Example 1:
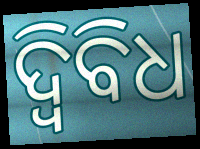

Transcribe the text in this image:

ଦ୍ଵିବିଧ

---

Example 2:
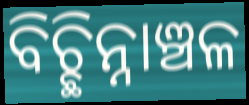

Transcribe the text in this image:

ବିଚ୍ଛିନ୍ନାଞ୍ଚଳ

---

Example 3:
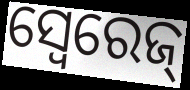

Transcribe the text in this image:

ସ୍ୱେରେଜ୍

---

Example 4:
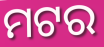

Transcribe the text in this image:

ମଟର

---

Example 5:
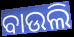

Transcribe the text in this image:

ବାଉଲି